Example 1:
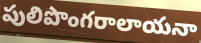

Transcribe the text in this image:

పులిపొంగరాలాయనా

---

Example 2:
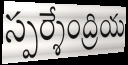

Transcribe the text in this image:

స్పర్శేంద్రియ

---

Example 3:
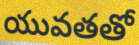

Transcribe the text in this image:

యువతతో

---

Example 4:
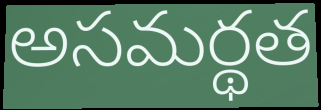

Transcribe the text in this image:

అసమర్థత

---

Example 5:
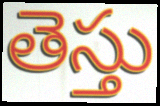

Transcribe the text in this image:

తెస్తు